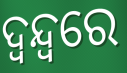
ଦ୍ୱନ୍ଦ୍ବରେ